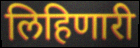
लिहिणारी